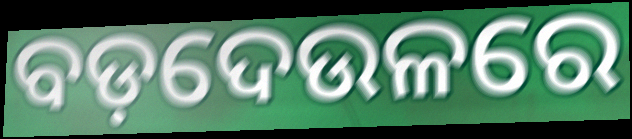
ବଡ଼ଦେଉଳରେ